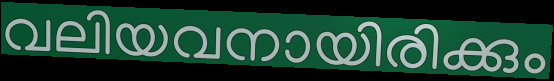
വലിയവനായിരിക്കും